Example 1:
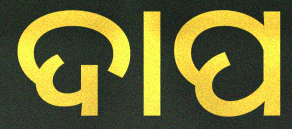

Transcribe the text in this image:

ଦାପ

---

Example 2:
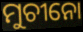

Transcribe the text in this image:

ମୁଚୀନୋ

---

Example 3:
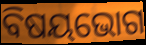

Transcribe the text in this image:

ବିଷୟଭୋଗ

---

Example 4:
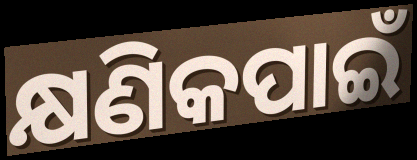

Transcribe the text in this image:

କ୍ଷଣିକପାଇଁ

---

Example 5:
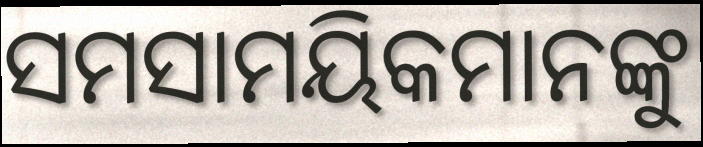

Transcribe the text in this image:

ସମସାମୟିକମାନଙ୍କୁ